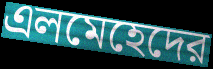
এলমেহেদের